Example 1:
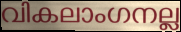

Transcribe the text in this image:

വികലാംഗനല്ല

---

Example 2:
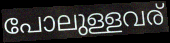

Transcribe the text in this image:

പോലുള്ളവര്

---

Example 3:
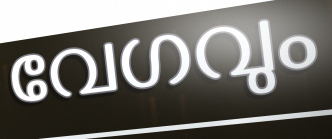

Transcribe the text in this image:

വേഗവും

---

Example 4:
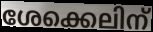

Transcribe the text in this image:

ശേക്കെലിന്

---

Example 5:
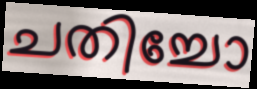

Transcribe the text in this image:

ചതിച്ചോ